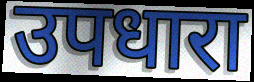
उपधारा